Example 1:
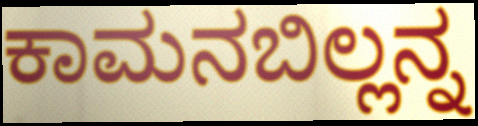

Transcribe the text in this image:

ಕಾಮನಬಿಲ್ಲನ್ನ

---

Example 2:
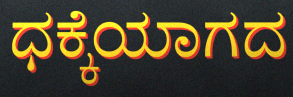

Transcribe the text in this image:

ಧಕ್ಕೆಯಾಗದ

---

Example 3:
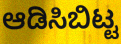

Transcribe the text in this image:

ಆಡಿಸಿಬಿಟ್ಟ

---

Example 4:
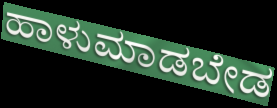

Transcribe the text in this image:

ಹಾಳುಮಾಡಬೇಡ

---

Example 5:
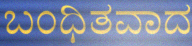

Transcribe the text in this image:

ಬಂಧಿತವಾದ